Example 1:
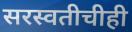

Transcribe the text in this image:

सरस्वतीचीही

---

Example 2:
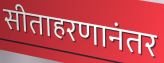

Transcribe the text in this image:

सीताहरणानंतर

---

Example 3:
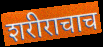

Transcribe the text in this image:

शरीराचाच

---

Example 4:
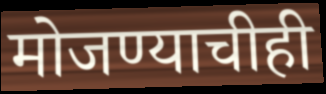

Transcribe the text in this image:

मोजण्याचीही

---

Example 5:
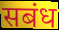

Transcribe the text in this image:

सबंध